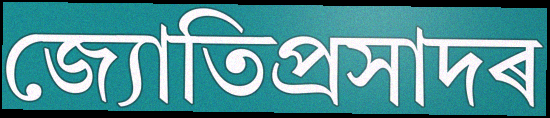
জ্যোতিপ্ৰসাদৰ